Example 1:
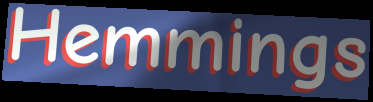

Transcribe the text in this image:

Hemmings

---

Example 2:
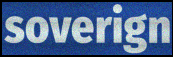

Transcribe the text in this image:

soverign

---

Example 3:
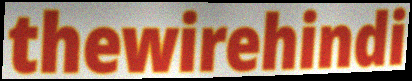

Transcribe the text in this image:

thewirehindi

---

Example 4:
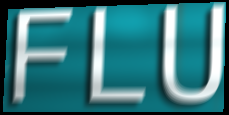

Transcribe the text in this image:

FLU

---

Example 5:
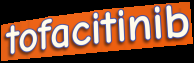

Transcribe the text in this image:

tofacitinib